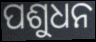
ପଶୁଧନ